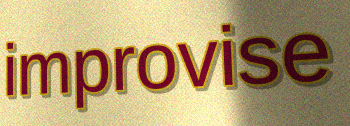
improvise